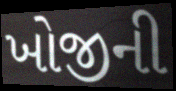
ખોજીની